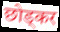
छोड्कर